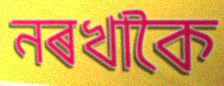
নৰখাকৈ